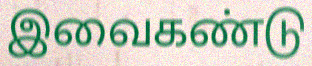
இவைகண்டு